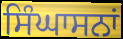
ਸਿੰਘਾਸਨਾਂ